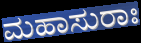
ಮಹಾಸುರಾಃ